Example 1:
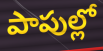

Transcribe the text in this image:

పాపుల్లో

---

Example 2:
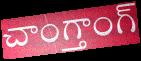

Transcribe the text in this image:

చాంగ్తాంగ్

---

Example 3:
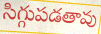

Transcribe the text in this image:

సిగ్గుపడతావు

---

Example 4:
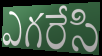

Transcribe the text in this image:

ఎగరేసి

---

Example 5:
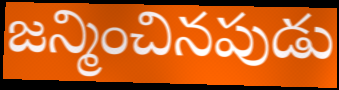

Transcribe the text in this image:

జన్మించినపుడు